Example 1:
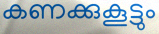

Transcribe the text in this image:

കണക്കുകൂട്ടും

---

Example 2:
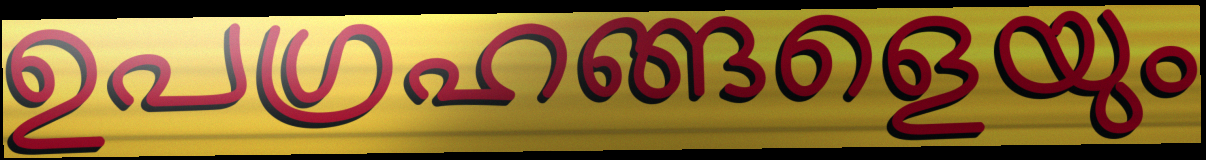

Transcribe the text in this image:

ഉപഗ്രഹങ്ങളെയും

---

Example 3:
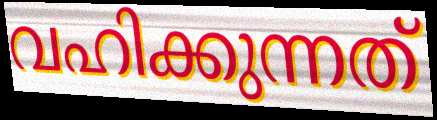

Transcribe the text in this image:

വഹിക്കുന്നത്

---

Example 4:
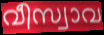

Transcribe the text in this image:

വീസ്വാവ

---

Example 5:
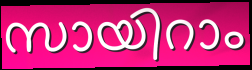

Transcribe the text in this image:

സായിറാം